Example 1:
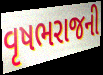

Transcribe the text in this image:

વૃષભરાજની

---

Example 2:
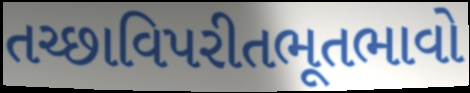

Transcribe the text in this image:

તચ્છાવિપરીતભૂતભાવો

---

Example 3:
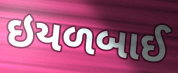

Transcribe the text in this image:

ઇયળબાઈ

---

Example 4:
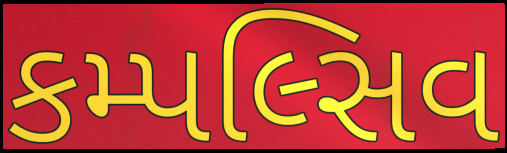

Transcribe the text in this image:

કમ્પલ્સિવ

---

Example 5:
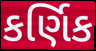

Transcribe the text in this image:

કર્ણિક